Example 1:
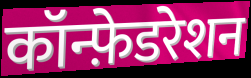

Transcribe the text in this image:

कॉन्फ़ेडरेशन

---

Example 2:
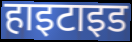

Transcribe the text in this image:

हाइटाइड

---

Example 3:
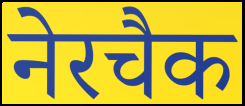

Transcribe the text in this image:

नेरचैक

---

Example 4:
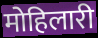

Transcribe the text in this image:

मोहिलारी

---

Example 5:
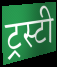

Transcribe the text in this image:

ट्रस्टी